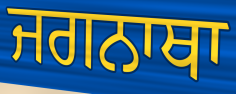
ਜਗਨਾਥਾ